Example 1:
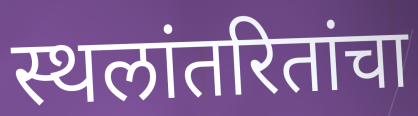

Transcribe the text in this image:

स्थलांतरितांचा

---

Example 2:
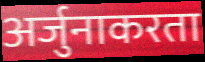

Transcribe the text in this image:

अर्जुनाकरता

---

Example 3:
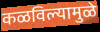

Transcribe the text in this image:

कळविल्यामुळे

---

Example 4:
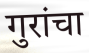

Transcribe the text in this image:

गुरांचा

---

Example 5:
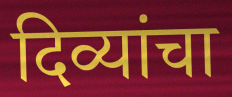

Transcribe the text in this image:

दिव्यांचा